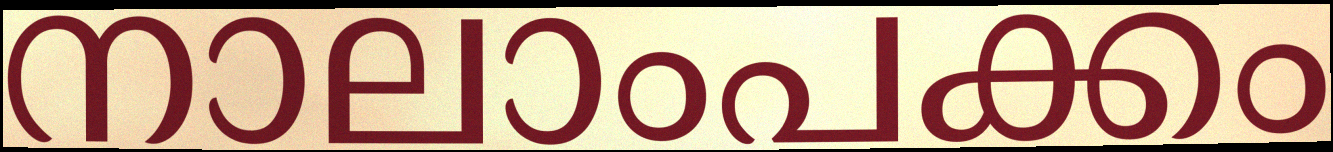
നാലാംപക്കം